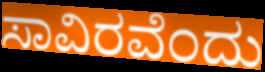
ಸಾವಿರವೆಂದು